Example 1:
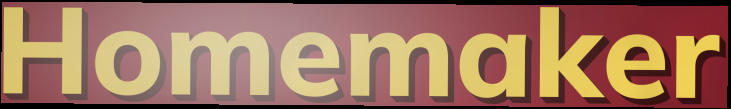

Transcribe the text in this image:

Homemaker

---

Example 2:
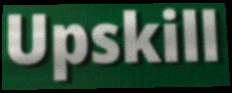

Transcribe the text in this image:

Upskill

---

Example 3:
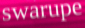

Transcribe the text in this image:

swarupe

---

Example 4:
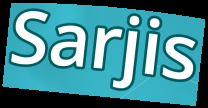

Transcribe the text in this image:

Sarjis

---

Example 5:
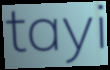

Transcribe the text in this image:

tayi